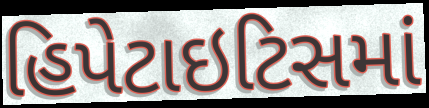
હિપેટાઇટિસમાં